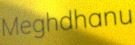
Meghdhanu